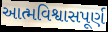
આત્મવિશ્વાસપૂર્ણ